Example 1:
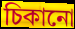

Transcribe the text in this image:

চিকানো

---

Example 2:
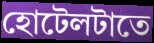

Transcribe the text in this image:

হোটেলটাতে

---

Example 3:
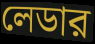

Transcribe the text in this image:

লেডার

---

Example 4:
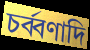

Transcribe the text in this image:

চর্ব্বণাদি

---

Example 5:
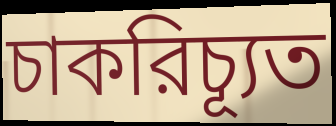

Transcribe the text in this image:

চাকরিচ্যূত